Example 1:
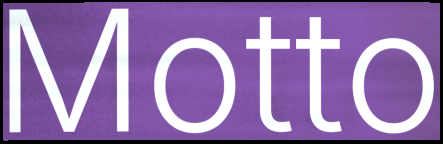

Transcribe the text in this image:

Motto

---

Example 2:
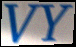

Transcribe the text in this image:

VY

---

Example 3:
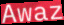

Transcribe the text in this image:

Awaz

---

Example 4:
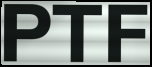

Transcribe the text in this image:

PTF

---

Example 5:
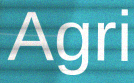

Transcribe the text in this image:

Agri